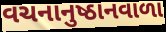
વચનાનુષ્ઠાનવાળા